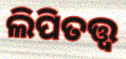
ଲିପିତତ୍ତ୍ୱ